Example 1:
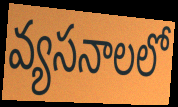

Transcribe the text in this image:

వ్యసనాలలో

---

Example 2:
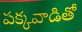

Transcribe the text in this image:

పక్కవాడితో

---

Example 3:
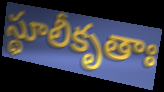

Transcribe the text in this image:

స్థూలీకృతాః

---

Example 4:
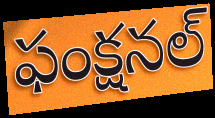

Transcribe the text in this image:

ఫంక్షనల్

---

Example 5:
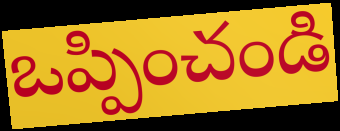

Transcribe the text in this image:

ఒప్పించండి